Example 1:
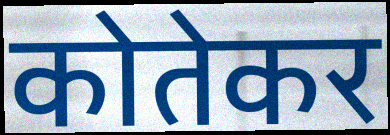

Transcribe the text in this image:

कोतेकर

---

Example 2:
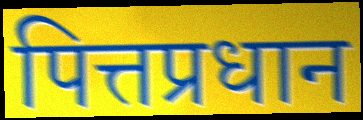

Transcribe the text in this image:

पित्तप्रधान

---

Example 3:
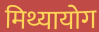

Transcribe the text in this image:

मिथ्यायोग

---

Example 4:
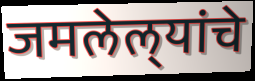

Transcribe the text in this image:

जमलेल्यांचे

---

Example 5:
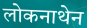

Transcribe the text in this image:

लोकनाथेन